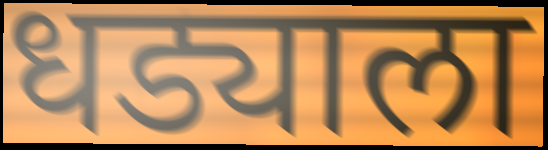
धड्याला